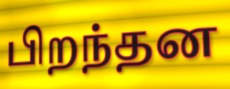
பிறந்தன